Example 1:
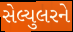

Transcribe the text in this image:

સેલ્યુલરને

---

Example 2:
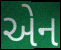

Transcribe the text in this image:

એન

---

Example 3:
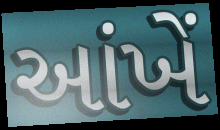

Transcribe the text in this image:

આંખેં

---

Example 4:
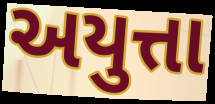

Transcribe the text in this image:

અયુત્તા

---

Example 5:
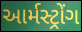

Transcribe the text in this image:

આર્મસ્ટ્રોંગ